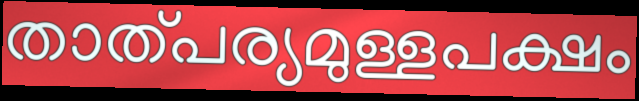
താത്പര്യമുള്ളപക്ഷം